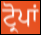
ਟ੍ਰੋਪਾਂ